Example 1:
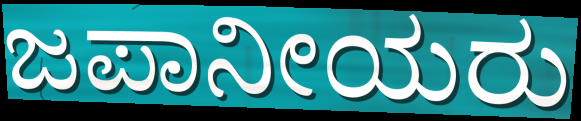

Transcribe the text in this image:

ಜಪಾನೀಯರು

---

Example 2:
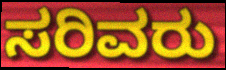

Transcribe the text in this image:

ಸರಿವರು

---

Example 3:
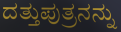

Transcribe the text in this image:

ದತ್ತುಪುತ್ರನನ್ನು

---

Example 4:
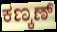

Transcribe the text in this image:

ಕಣ್ಕಣ್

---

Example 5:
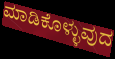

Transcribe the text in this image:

ಮಾಡಿಕೊಳ್ಳುವುದ